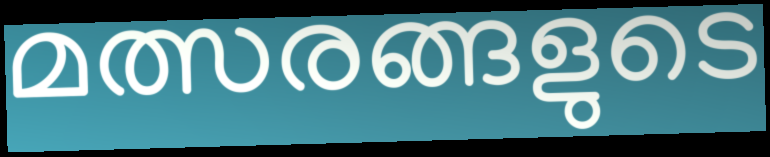
മത്സരങ്ങളുടെ